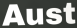
Aust